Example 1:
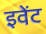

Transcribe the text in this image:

इवेंट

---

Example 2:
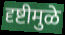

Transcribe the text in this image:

दृष्टीमुळे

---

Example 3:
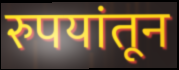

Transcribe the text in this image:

रुपयांतून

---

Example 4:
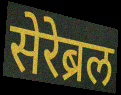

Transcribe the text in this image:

सेरेब्रल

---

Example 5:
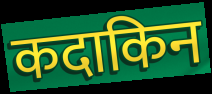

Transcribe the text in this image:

कदाकिन